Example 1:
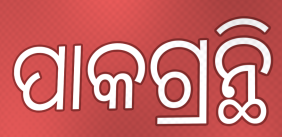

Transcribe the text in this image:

ପାକଗ୍ରନ୍ଥି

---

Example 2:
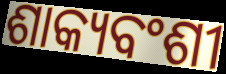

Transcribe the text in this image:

ଶାକ୍ୟବଂଶୀ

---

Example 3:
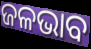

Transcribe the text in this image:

ଜଳଭାବ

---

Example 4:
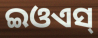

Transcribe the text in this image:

ଇଓଏସ୍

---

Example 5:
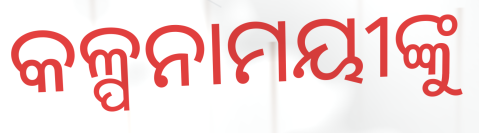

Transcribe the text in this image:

କଳ୍ପନାମୟୀଙ୍କୁ